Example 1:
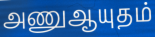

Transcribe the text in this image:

அணுஆயுதம்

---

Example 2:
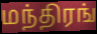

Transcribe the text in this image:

மந்திரங்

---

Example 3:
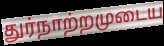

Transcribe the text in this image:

துர்நாற்றமுடைய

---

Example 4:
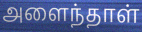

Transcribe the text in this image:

அளைந்தாள்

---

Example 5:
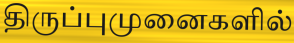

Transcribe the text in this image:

திருப்புமுனைகளில்